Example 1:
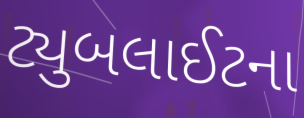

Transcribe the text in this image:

ટ્યુબલાઈટના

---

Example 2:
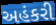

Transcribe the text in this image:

અહંકરી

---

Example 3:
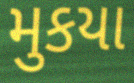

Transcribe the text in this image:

મુકયા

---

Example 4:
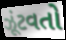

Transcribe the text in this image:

ઝૂંટવતો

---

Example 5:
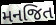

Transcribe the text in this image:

મનજિત